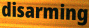
disarming